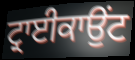
ਟ੍ਰਾਈਕਾਉਂਟ